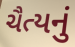
ચૈત્યનું